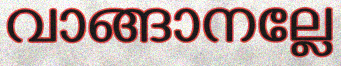
വാങ്ങാനല്ലേ